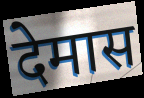
देमास